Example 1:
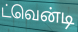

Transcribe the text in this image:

ட்வென்டி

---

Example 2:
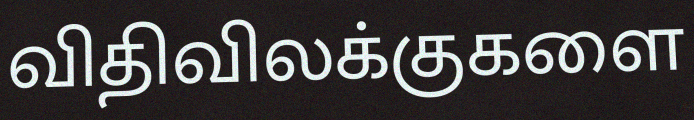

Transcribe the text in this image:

விதிவிலக்குகளை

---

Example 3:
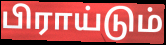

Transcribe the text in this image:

பிராய்டும்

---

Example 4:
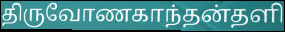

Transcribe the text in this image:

திருவோணகாந்தன்தளி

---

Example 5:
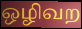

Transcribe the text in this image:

ஒழிவற